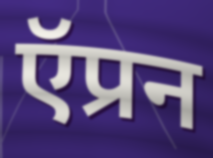
ऍप्रन